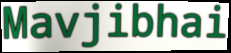
Mavjibhai